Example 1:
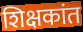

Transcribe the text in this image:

शिक्षकांत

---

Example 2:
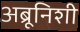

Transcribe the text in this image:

अब्रूनिशी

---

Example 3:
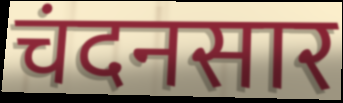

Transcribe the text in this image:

चंदनसार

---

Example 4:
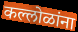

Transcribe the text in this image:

कल्लोळांना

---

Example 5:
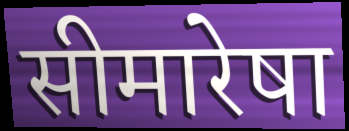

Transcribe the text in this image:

सीमारेषा